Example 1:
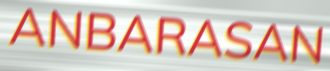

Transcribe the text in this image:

ANBARASAN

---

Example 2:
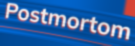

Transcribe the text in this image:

Postmortom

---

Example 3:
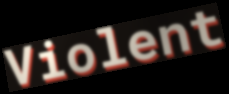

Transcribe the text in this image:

Violent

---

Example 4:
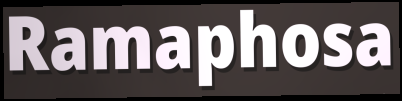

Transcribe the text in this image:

Ramaphosa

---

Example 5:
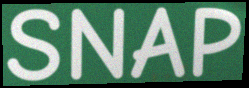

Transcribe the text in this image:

SNAP